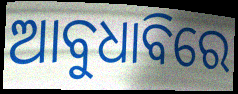
ଆବୁଧାବିରେ